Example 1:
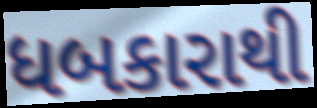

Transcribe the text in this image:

ધબકારાથી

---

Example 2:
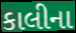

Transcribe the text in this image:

કાલીના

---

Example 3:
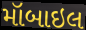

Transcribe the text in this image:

મૉબાઇલ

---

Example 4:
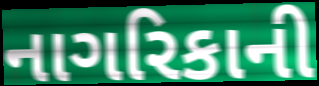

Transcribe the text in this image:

નાગરિકાની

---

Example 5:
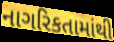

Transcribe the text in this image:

નાગરિકતામાંથી